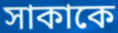
সাকাকে